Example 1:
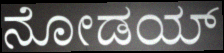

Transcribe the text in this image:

ನೋಡಯ್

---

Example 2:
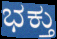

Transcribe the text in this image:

ಭಕ್ತು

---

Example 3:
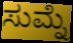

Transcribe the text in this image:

ಸುಮ್ನೆ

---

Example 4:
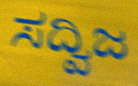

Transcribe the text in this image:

ಸದ್ವಿಜ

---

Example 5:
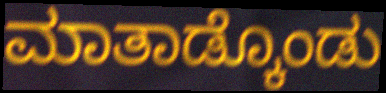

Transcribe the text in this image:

ಮಾತಾಡ್ಕೊಂಡು